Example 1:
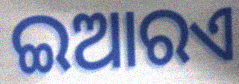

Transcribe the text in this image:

ଇଆରଏ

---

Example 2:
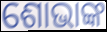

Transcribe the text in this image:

ଶୋଭାଙ୍କ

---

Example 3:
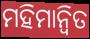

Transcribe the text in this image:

ମହିମାନ୍ଵିତ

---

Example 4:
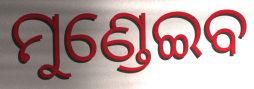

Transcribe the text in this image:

ମୁଣ୍ଡେଇବ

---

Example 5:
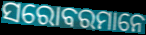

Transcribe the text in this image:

ସରୋବରମାନେ